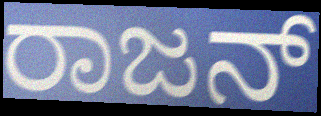
ರಾಜನ್